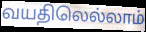
வயதிலெல்லாம்